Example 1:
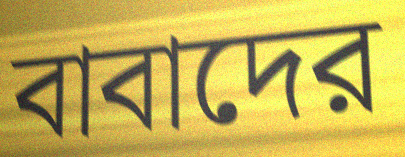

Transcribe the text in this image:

বাবাদের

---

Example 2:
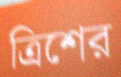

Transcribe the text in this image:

ত্রিশের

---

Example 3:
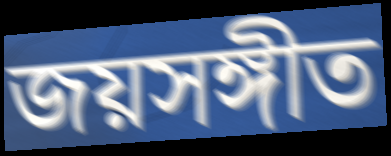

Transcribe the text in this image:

জয়সঙ্গীত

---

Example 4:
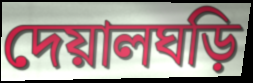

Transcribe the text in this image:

দেয়ালঘড়ি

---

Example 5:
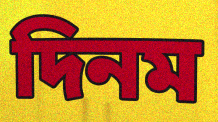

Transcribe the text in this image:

দিনম